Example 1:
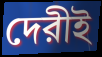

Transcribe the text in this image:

দেরীই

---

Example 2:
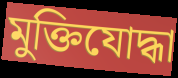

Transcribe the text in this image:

মুক্তিযোদ্ধা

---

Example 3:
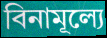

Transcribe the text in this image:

বিনামূল্যে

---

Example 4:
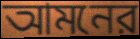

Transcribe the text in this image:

আমনের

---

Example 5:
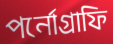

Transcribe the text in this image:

পর্নোগ্রাফি